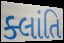
ક્લાંતિ